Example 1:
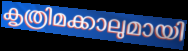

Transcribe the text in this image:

കൃത്രിമക്കാലുമായി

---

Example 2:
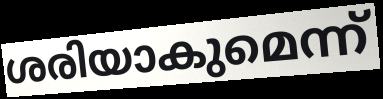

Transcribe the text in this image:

ശരിയാകുമെന്ന്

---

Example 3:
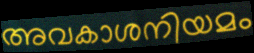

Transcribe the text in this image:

അവകാശനിയമം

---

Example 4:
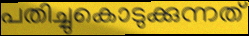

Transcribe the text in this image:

പതിച്ചുകൊടുക്കുന്നത്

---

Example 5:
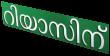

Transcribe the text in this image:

റിയാസിന്